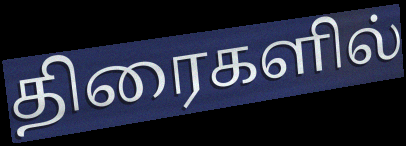
திரைகளில்